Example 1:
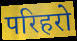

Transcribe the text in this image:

परिहरो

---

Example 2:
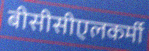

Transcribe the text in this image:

बीसीसीएलकर्मी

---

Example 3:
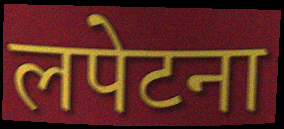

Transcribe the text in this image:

लपेटना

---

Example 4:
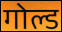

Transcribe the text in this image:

गोल्‍ड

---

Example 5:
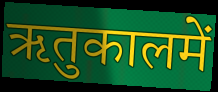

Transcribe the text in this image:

ऋतुकालमें